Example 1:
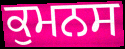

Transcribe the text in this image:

ਕੁਮਨਸ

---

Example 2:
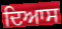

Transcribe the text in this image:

ਦਿਆਸ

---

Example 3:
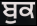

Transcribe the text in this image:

ਬੁਕ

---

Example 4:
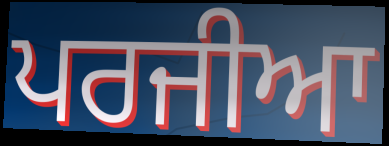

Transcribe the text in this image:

ਪਰਜੀਆ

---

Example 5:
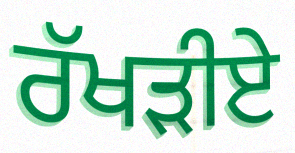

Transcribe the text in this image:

ਰੱਖੜੀਏ